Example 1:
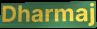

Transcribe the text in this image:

Dharmaj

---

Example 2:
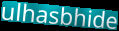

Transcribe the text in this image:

ulhasbhide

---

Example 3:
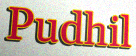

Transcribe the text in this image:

Pudhil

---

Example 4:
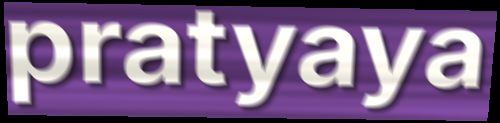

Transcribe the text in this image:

pratyaya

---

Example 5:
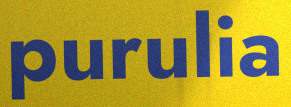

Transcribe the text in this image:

purulia